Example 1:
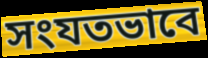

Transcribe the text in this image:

সংযতভাবে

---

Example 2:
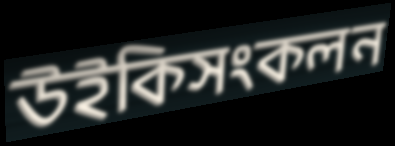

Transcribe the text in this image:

উইকিসংকলন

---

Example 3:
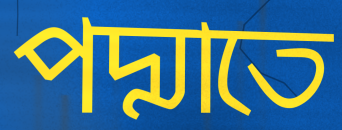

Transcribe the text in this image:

পদ্মাতে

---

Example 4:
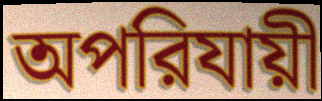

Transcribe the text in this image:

অপরিযায়ী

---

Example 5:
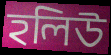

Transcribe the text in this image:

হলিউ